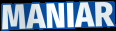
MANIAR